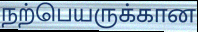
நற்பெயருக்கான